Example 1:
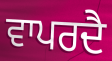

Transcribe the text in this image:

ਵਾਪਰਦੈ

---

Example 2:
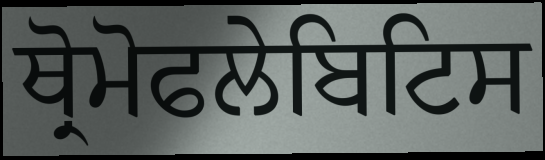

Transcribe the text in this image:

ਥ੍ਰੋਮੋਫਲੇਬਿਟਿਸ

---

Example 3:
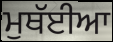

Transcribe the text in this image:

ਮੁਥੱਈਆ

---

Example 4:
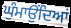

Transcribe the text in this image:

ਘੁੰਮਾਉਂਦਿਆਂ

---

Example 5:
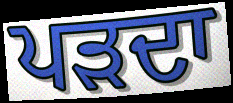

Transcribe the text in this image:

ਪੜਦਾ